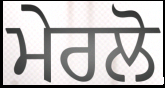
ਮੇਰਲੋ